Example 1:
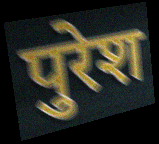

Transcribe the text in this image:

पुरेश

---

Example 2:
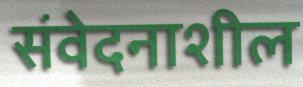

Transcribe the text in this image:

संवेदनाशील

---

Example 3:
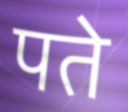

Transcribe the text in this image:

पते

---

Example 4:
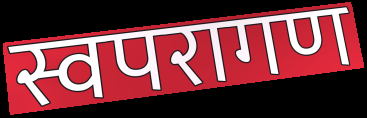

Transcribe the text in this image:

स्वपरागण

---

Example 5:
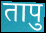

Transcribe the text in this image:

तापु